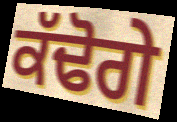
ਕੱਢੋਗੇ